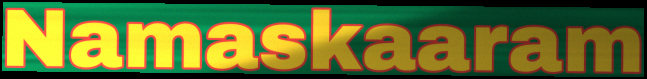
Namaskaaram